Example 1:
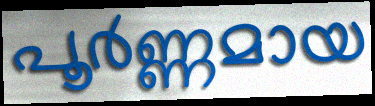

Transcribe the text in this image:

പൂർണ്ണമായ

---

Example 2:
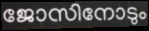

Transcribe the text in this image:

ജോസിനോടും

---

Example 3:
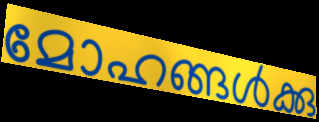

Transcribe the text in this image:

മോഹങ്ങൾക്കു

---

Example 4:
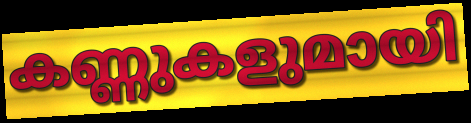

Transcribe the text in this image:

കണ്ണുകളുമായി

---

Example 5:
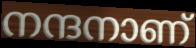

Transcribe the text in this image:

നന്ദനാണ്